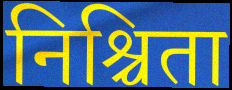
निश्चिता